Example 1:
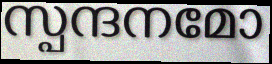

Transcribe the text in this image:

സ്പന്ദനമോ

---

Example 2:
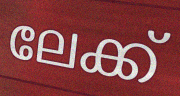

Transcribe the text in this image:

ലേക്ക്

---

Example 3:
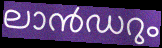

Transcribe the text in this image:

ലാൻഡറും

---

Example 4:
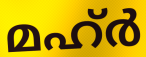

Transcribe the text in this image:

മഹ്ർ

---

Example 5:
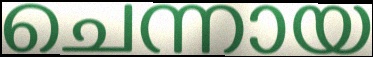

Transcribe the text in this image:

ചെന്നായ